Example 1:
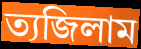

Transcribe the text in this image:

ত্যজিলাম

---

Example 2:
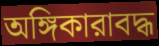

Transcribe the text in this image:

অঙ্গিকারাবদ্ধ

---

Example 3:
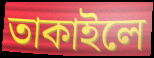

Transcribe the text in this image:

তাকাইলে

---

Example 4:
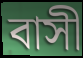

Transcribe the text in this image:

বাসী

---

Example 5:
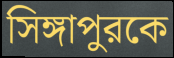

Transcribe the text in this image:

সিঙ্গাপুরকে